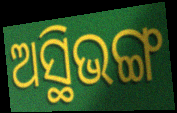
ଅସ୍ଥିଭଙ୍ଗ